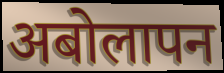
अबोलापन